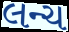
લન્ચ